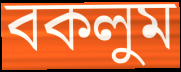
বকলুম